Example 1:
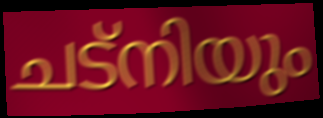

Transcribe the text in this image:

ചട്നിയും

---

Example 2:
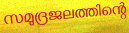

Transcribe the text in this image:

സമുദ്രജലത്തിന്റെ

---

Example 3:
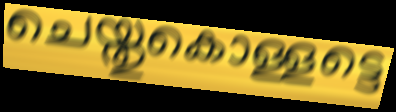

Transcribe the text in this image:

ചെയ്തുകൊള്ളട്ടെ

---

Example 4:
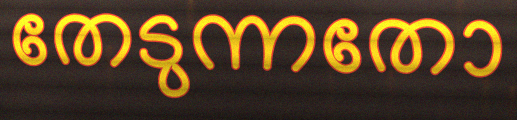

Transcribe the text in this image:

തേടുന്നതോ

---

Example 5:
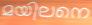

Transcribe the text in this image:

മയിലനെ